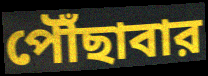
পৌঁছাবার